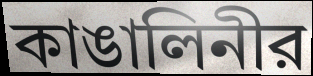
কাঙালিনীর